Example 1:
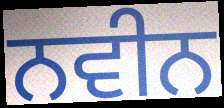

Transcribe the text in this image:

ਨਵੀਨ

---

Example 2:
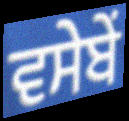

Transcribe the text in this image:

ਵਸੇਬੇਂ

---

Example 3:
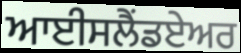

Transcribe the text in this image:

ਆਈਸਲੈਂਡਏਅਰ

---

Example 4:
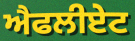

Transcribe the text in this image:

ਐਫਲੀਏਟ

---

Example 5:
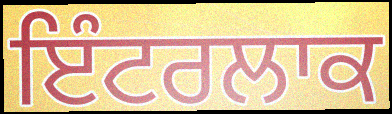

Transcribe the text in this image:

ਇੰਟਰਲਾਕ